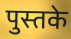
पुस्तके